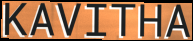
KAVITHA